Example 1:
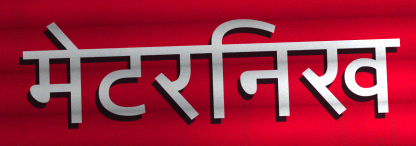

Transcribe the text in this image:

मेटरनिख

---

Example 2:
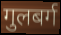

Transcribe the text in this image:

गुलबर्ग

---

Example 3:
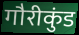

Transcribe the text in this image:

गौरीकुंड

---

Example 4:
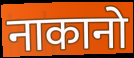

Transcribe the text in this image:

नाकानो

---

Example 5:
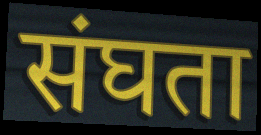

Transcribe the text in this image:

संघता